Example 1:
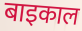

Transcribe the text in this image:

बाइकाल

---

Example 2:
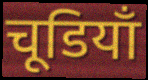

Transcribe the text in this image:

चूडियाँ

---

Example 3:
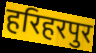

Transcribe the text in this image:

हरिहरपुर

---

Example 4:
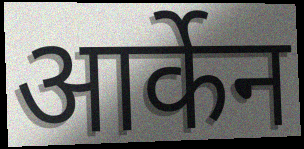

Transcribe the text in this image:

आर्केन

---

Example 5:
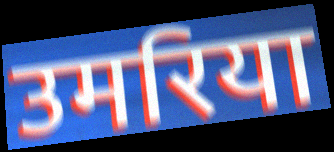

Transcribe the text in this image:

उमरिया